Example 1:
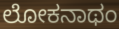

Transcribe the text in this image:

ಲೋಕನಾಥಂ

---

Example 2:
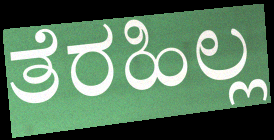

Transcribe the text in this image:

ತೆರಹಿಲ್ಲ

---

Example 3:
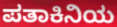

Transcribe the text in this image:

ಪತಾಕಿನಿಯ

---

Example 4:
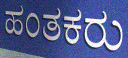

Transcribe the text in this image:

ಹಂತಕರು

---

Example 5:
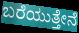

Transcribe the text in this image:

ಬರೆಯುತ್ತೇನೆ